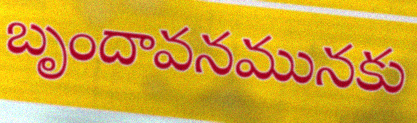
బృందావనమునకు